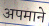
अपमाने